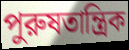
পুরুষতান্ত্রিক